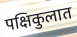
पक्षिकुलात